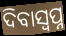
ଦିବାସ୍ଵପ୍ନ